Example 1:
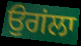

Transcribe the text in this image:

ਉਗਂਲਾ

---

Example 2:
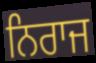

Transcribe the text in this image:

ਨਿਰਾਜ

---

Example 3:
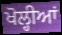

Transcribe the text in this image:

ਖੋਲ੍ਹੀਆਂ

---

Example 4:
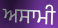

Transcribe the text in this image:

ਅਸਾਮੀ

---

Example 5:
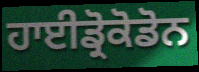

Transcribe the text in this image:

ਹਾਈਡ੍ਰੋਕੋਡੋਨ